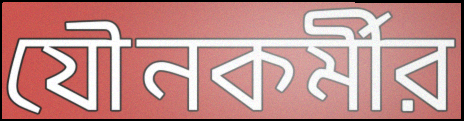
যৌনকর্মীর